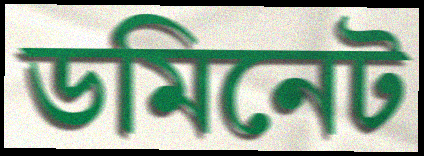
ডমিনেট